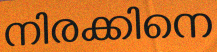
നിരക്കിനെ